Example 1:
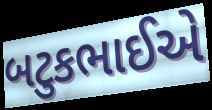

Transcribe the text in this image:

બટુકભાઈએ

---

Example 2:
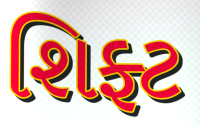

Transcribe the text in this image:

શિફ્ટ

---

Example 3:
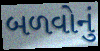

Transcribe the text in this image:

બળવોનું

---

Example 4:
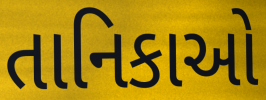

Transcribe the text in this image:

તાનિકાઓ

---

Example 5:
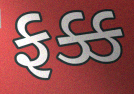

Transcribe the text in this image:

ફક્ક